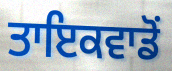
ਤਾਇਕਵਾਡੋਂ